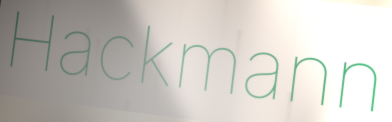
Hackmann